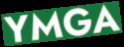
YMGA